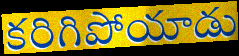
కరిగిపోయాడు